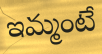
ఇమ్మంటే